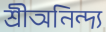
শ্রীঅনিন্দ্য